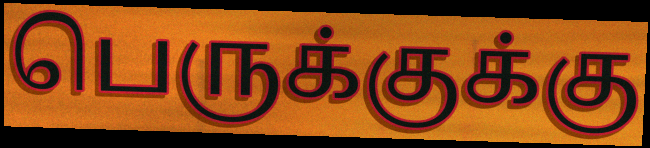
பெருக்குக்கு